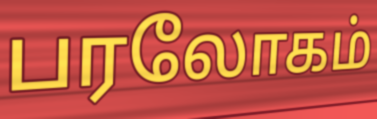
பரலோகம்